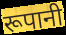
रूपानी